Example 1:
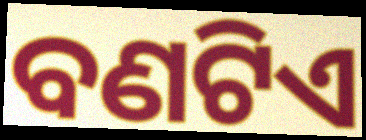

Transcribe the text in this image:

ବଣଟିଏ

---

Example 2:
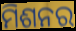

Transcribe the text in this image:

ମିଶନର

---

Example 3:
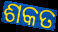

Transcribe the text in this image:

ଶକତ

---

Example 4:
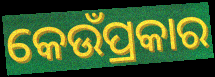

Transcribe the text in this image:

କେଉଁପ୍ରକାର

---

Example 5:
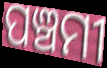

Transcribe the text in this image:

ପଞ୍ଚମୀ